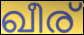
ഖീര്